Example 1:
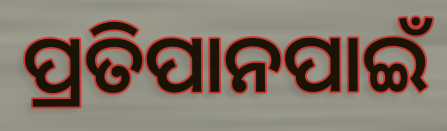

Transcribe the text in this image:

ପ୍ରତିପାନପାଇଁ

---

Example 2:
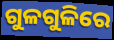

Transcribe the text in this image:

ଗୁଳଗୁଳିରେ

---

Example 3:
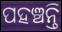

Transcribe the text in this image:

ପହଞ୍ଚନ୍ତି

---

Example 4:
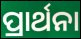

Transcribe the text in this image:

ପ୍ରାର୍ଥନା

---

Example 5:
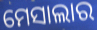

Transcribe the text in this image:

ମେସାଲାର